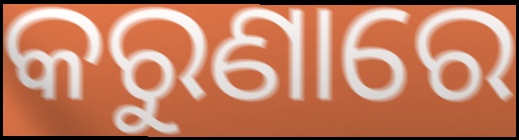
କରୁଣାରେ